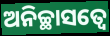
ଅନିଚ୍ଛାସତ୍ୱେ